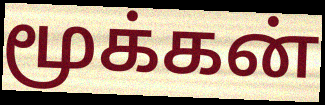
மூக்கன்